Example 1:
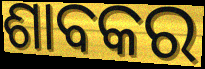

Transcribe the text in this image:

ଶାବକର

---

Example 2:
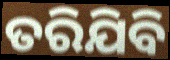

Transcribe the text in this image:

ତରିଯିବି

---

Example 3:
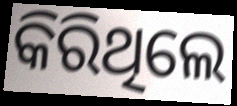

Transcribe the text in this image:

କିରିଥିଲେ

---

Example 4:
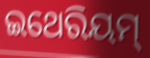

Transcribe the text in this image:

ଇଥେରିୟମ୍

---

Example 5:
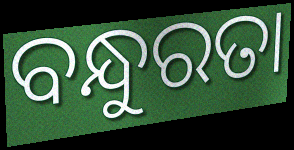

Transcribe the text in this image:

ବନ୍ଧୁରତା